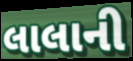
લાલાની